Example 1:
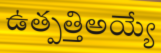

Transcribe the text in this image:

ఉత్పత్తిఅయ్యే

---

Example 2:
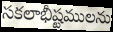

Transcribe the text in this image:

సకలాభీష్టములను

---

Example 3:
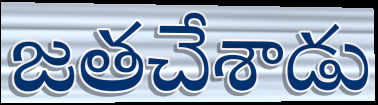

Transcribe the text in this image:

జతచేశాడు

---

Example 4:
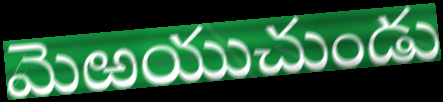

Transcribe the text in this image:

మెఱయుచుండు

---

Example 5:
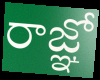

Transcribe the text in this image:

రాజ్ఞో